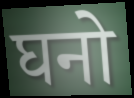
घनो